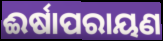
ଈର୍ଷାପରାୟଣ